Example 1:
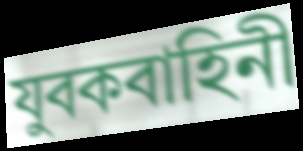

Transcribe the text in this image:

যুবকবাহিনী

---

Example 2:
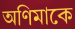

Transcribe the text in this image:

অণিমাকে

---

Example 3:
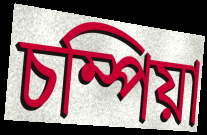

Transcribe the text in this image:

চম্পিয়া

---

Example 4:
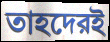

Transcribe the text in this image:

তাহদেরই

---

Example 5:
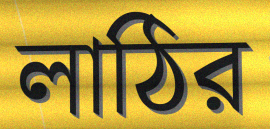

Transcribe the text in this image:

লাঠির